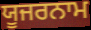
ਯੂਜਰਨਾਮ